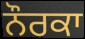
ਨੌਰਕਾ